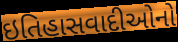
ઇતિહાસવાદીઓનો